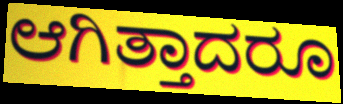
ಆಗಿತ್ತಾದರೂ